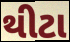
થીટા